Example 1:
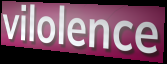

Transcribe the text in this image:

vilolence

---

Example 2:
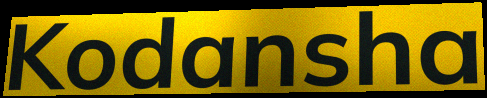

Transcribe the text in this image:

Kodansha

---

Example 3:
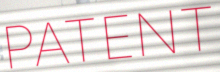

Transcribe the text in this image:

PATENT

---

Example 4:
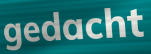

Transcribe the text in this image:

gedacht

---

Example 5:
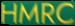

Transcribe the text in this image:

HMRC